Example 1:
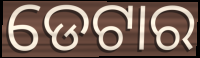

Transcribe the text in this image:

ଡେଟାର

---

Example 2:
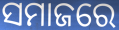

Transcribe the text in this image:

ସମାଜରେ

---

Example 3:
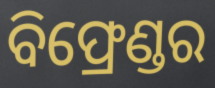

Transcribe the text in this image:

ବିଫ୍ରେଣ୍ଡର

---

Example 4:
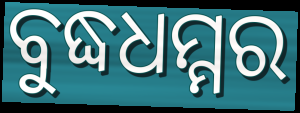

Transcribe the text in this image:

ବୁଦ୍ଧଧମ୍ମର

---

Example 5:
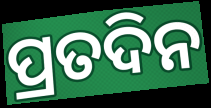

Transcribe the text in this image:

ପ୍ରତଦିନ